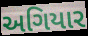
અગિયાર